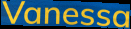
Vanessa